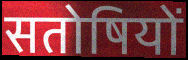
सतोषियों